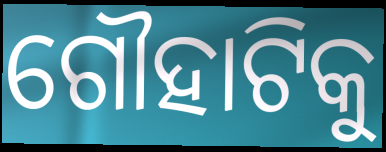
ଗୌହାଟିକୁ